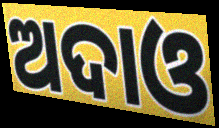
ଅଦାଓ